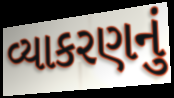
વ્યાકરણનું